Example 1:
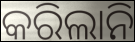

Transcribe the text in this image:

କରିଲାନି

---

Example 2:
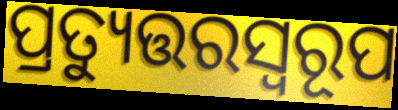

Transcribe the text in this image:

ପ୍ରତ୍ୟୁତ୍ତରସ୍ଵରୂପ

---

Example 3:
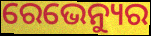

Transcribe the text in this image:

ରେଭେନ୍ୟୁର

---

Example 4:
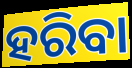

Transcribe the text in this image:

ହରିବା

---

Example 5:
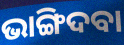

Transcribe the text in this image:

ଭାଙ୍ଗିଦବା